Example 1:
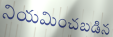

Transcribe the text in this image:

నియమించబడిన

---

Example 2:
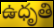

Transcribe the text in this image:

ఉధృతి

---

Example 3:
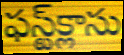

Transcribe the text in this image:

ఫస్ట్‌క్లాసు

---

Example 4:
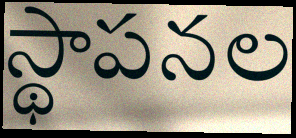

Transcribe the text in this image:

స్థాపనల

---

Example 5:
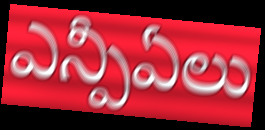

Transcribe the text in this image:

ఎన్పీఏలు